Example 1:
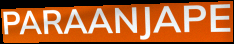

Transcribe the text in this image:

PARAANJAPE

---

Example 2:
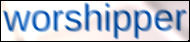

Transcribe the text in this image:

worshipper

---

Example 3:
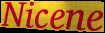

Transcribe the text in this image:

Nicene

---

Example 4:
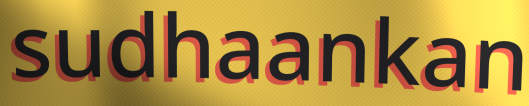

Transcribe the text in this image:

sudhaankan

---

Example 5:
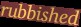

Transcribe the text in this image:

rubbished